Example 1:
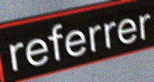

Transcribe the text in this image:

referrer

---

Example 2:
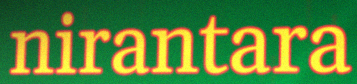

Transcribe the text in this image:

nirantara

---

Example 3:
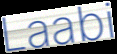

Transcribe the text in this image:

Laabi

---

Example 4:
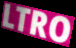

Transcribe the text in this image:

LTRO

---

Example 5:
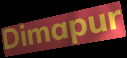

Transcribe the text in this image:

Dimapur